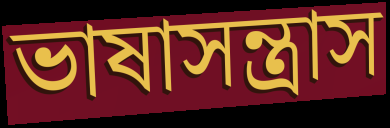
ভাষাসন্ত্রাস